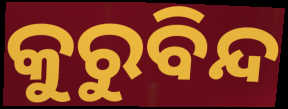
କୁରୁବିନ୍ଦ